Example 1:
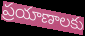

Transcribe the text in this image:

ప్రయాణాలకు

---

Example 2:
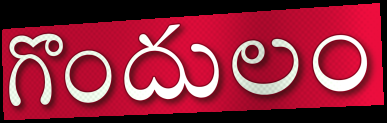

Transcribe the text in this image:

గొందులం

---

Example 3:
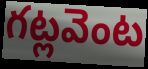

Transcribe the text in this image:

గట్లవెంట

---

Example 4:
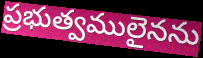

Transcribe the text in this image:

ప్రభుత్వములైనను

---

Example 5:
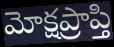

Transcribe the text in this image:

మోక్షప్రాప్తి